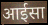
आईसा